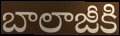
బాలాజీకి